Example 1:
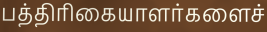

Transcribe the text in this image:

பத்திரிகையாளர்களைச்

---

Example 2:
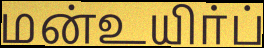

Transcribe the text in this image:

மன்உயிர்ப்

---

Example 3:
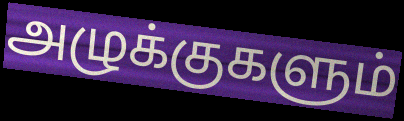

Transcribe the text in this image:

அழுக்குகளும்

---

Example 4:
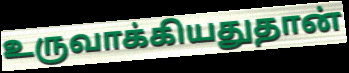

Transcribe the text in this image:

உருவாக்கியதுதான்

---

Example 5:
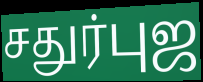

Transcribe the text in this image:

சதுர்புஜ